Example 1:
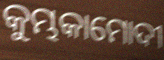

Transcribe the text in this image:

କୁମ୍ଭକାମୋଦୀ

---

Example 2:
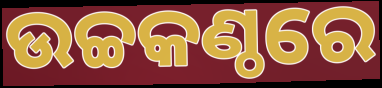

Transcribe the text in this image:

ଉଚ୍ଚକଣ୍ଠରେ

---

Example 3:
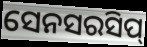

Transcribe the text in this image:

ସେନସରସିପ୍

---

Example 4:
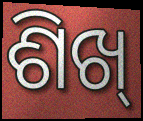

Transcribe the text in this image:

ଶିଖ୍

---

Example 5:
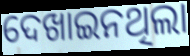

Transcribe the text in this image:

ଦେଖାଇନଥିଲା